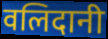
वलिदानी